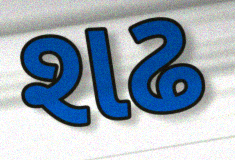
શઢ